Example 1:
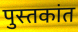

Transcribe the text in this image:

पुस्तकांत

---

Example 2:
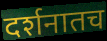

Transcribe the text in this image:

दर्शनातच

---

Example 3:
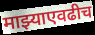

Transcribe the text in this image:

माझ्याएवढीच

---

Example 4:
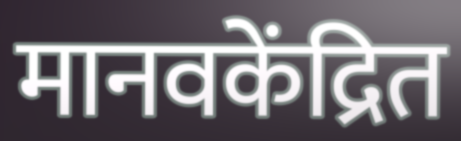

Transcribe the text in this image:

मानवकेंद्रित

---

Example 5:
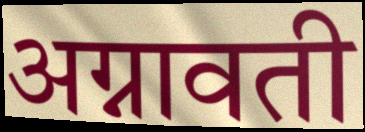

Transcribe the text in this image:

अग्नावती